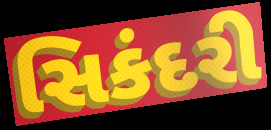
સિકંદરી